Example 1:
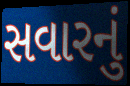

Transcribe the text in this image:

સવારનું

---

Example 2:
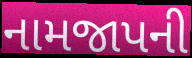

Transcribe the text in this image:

નામજાપની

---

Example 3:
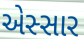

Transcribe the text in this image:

એસ્સાર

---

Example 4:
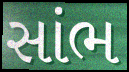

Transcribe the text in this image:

સાંભ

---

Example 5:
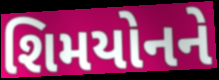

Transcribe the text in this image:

શિમયોનને